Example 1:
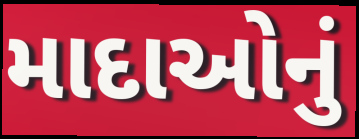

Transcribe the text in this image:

માદાઓનું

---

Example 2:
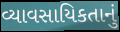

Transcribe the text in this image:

વ્યાવસાયિકતાનું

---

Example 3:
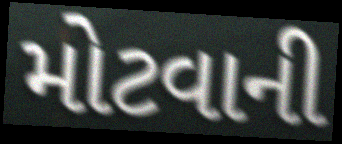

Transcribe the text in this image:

મોટવાની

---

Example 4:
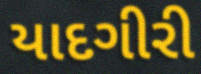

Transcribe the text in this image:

યાદગીરી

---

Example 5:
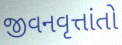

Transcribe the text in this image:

જીવનવૃત્તાંતો